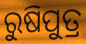
ରୁଷିପୁତ୍ର